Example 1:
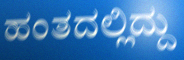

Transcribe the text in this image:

ಹಂತದಲ್ಲಿದ್ದು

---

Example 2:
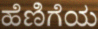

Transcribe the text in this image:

ಹೆಣಿಗೆಯ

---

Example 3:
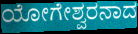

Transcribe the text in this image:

ಯೋಗೇಶ್ವರನಾದ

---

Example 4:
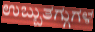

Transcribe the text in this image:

ಉಬ್ಬುತಗ್ಗುಗಳ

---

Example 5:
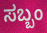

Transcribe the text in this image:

ಸಬ್ಬಂ